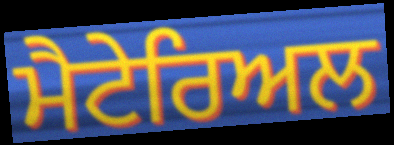
ਮੈਟੇਰਿਅਲ